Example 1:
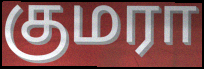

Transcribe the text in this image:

குமரா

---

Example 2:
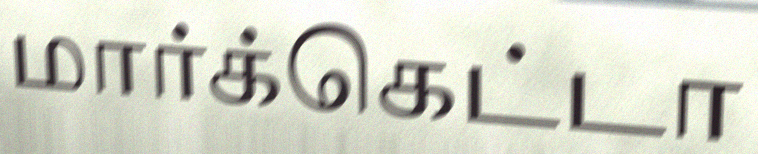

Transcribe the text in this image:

மார்க்கெட்டா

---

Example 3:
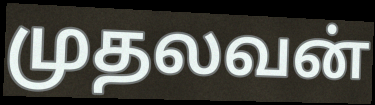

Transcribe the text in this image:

முதலவன்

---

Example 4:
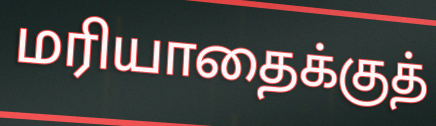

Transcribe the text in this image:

மரியாதைக்குத்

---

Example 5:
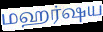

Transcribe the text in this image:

மஹர்ஷய